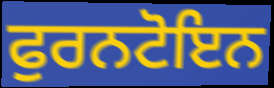
ਫੁਰਨਟੋਇਨ